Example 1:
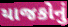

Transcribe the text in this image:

યાજકોનું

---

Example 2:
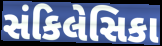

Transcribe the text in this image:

સંકિલેસિકા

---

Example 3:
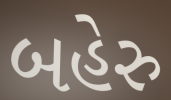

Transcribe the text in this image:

બહેરુ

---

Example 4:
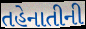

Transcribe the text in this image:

તહેનાતીની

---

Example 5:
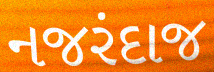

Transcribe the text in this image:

નજરંદાજ